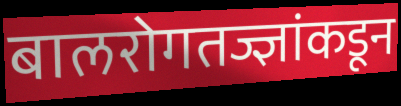
बालरोगतज्ज्ञांकडून